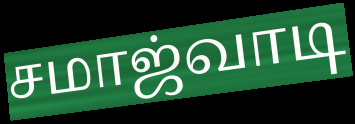
சமாஜ்வாடி